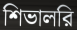
শিভালরি